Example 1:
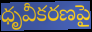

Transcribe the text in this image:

ధృవీకరణపై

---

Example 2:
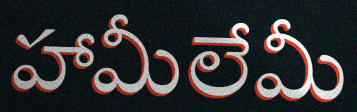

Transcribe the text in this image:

హామీలేమీ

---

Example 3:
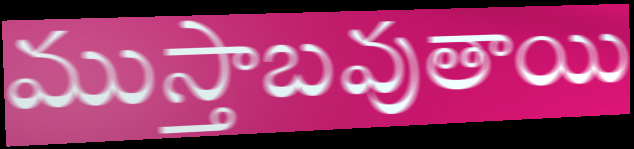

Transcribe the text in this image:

ముస్తాబవుతాయి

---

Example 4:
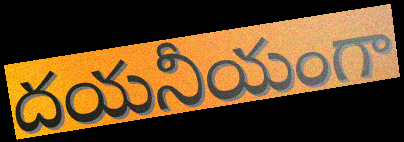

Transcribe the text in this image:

దయనీయంగా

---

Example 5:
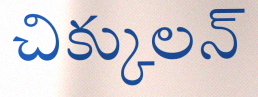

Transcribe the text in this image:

చిక్కులన్